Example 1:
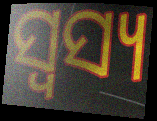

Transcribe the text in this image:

ସ୍ଵସ୍ଯ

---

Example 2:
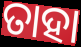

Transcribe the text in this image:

ତାହା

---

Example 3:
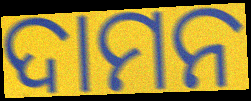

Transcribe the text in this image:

ଦାମନ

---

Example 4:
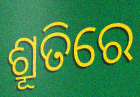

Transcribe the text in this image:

ଶ୍ରୂତିରେ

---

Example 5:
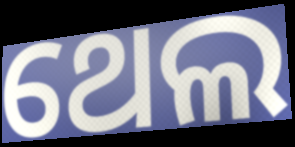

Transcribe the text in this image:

ଥେଲ